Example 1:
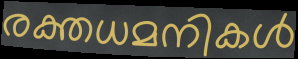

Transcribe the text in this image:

രക്തധമനികൾ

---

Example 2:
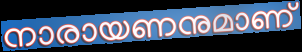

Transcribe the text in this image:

നാരായണനുമാണ്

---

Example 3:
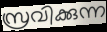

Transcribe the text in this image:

സ്രവിക്കുന്ന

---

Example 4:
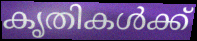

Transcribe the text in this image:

കൃതികൾക്ക്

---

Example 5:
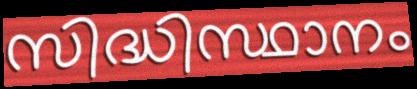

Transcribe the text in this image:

സിദ്ധിസ്ഥാനം